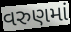
વરુણમાં